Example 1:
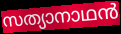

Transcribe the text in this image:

സത്യാനാഥൻ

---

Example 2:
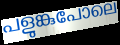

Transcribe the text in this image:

പളുങ്കുപോലെ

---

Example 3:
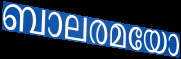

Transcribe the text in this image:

ബാലരമയോ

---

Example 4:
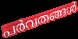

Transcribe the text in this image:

പർവതങ്ങൾ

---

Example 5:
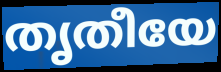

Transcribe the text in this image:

തൃതീയേ